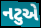
નટુએ